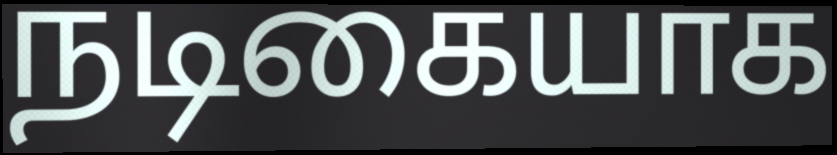
நடிகையாக